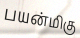
பயன்மிகு